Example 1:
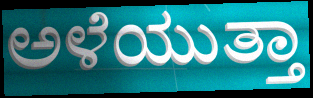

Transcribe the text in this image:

ಅಳೆಯುತ್ತಾ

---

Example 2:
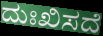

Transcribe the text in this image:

ದುಃಖಿಸದೆ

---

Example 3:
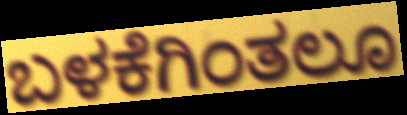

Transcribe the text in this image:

ಬಳಕೆಗಿಂತಲೂ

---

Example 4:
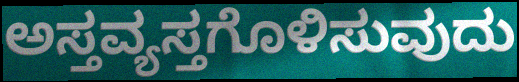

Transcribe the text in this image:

ಅಸ್ತವ್ಯಸ್ತಗೊಳಿಸುವುದು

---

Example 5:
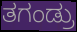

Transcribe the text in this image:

ತಗಂಡ್ರು